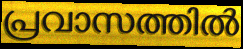
പ്രവാസത്തിൽ